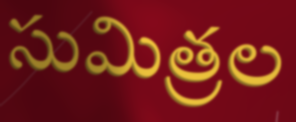
సుమిత్రల